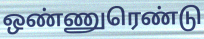
ஒண்ணுரெண்டு